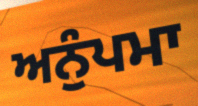
ਅਨੁੰਪਮਾ